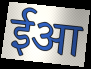
ईआ